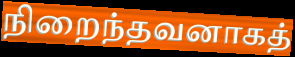
நிறைந்தவனாகத்